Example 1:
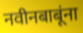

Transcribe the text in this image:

नवीनबाबूंना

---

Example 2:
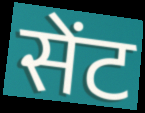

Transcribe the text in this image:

सेंट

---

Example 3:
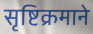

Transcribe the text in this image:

सृष्टिक्रमाने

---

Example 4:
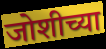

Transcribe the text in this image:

जोशीच्या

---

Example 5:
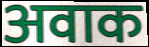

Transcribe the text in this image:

अवाक